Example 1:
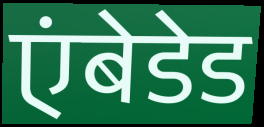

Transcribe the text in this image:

एंबेडेड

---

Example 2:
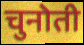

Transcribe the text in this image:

चुनोती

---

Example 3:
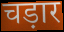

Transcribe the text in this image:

चड़ार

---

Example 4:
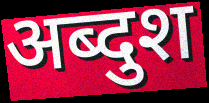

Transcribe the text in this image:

अब्दुश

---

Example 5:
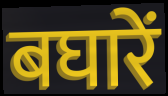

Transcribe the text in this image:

बघारें